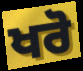
ਖਰੋ